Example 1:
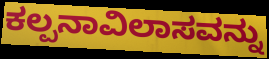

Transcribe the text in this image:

ಕಲ್ಪನಾವಿಲಾಸವನ್ನು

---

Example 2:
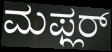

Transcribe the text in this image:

ಮಫ್ಲರ್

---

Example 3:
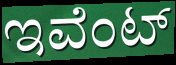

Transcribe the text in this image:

ಇವೆಂಟ್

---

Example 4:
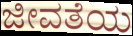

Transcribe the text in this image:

ಜೀವತೆಯ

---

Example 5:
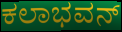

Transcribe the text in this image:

ಕಲಾಭವನ್